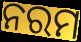
ନରମ